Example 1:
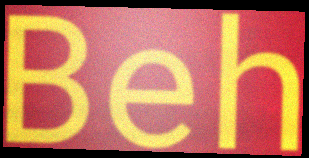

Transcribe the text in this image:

Beh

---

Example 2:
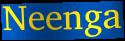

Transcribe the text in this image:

Neenga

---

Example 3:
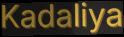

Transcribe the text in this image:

Kadaliya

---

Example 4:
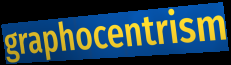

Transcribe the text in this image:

graphocentrism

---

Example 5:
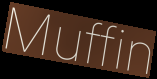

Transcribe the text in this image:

Muffin